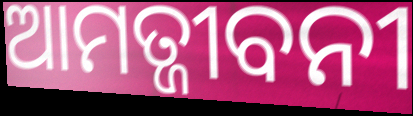
ଆମତ୍ଜୀବନୀ